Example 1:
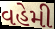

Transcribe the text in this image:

વહેમી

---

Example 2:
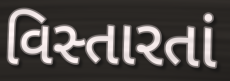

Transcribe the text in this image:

વિસ્તારતાં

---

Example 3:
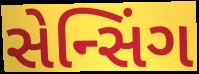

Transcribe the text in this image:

સેન્સિંગ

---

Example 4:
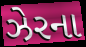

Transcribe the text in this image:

ઝેરના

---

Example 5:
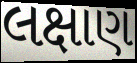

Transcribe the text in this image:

લક્ષાણ